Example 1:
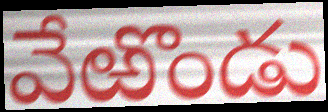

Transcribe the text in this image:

వేఱొండు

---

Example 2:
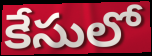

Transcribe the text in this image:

కేసులో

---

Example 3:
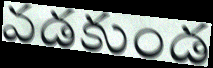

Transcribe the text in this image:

వడకుండ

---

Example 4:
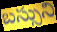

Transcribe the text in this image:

బస్సుని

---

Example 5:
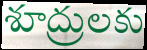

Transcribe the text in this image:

శూద్రులకు